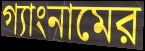
গ্যাংনামের